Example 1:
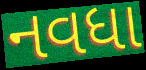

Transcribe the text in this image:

નવધા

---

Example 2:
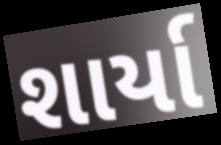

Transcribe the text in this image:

શાર્યા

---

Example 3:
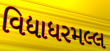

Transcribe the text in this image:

વિદ્યાધરમલ્લ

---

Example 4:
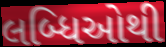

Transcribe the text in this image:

લબ્ધિઓથી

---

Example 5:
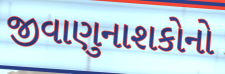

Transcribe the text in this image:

જીવાણુનાશકોનો